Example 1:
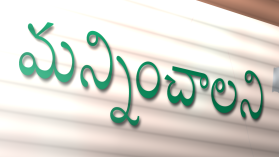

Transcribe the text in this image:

మన్నించాలని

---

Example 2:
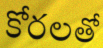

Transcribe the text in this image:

కోరలతో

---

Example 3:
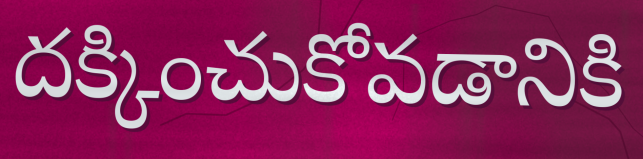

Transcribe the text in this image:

దక్కించుకోవడానికి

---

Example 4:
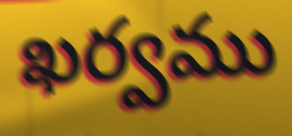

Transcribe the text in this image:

ఖర్వము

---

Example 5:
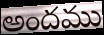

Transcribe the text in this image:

అందము